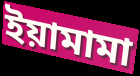
ইয়ামামা